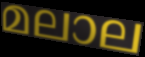
മലാല